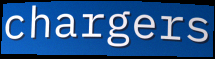
chargers